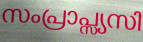
സംപ്രാപ്സ്യസി